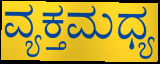
ವ್ಯಕ್ತಮಧ್ಯ